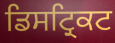
ਡਿਸਟ੍ਰਿਕਟ